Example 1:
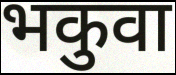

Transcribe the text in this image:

भकुवा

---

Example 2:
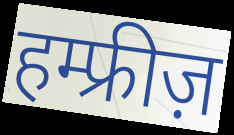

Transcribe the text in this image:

हम्फ्रीज़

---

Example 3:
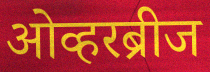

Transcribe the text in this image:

ओव्हरब्रीज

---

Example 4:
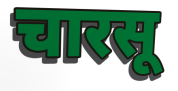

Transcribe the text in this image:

चारसू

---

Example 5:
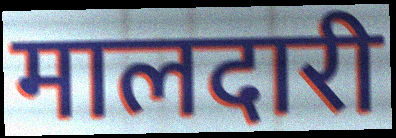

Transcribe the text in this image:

मालदारी